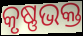
କୃଷ୍ଣଭକ୍ତ